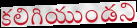
కలిగియుండని